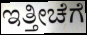
ಇತ್ತೀಚೆಗೆ